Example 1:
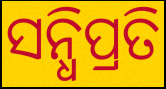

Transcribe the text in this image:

ସନ୍ଧିପ୍ରତି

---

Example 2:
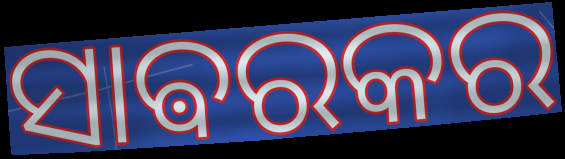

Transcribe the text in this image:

ସାଵରକର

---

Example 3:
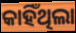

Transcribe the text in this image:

କାହିଁଥିଲା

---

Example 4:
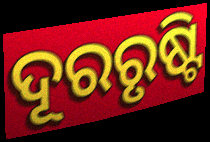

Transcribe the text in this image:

ଦୂରରୃଷ୍ଟି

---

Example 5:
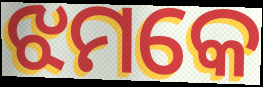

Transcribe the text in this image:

ଝମକେ